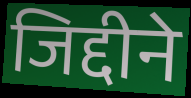
जिद्दीने